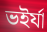
ভইর্যা